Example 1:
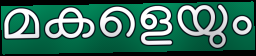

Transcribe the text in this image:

മകളെയും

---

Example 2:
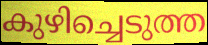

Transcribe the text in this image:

കുഴിച്ചെടുത്ത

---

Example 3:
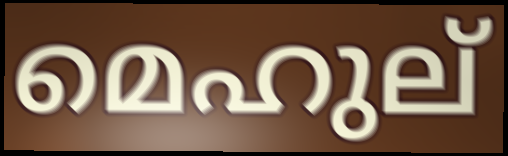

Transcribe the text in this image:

മെഹുല്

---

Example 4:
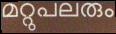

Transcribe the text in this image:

മറ്റുപലരും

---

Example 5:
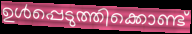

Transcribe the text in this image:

ഉൾപ്പെടുത്തിക്കൊണ്ട്